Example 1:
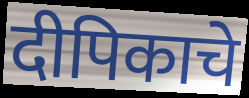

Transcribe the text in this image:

दीपिकाचे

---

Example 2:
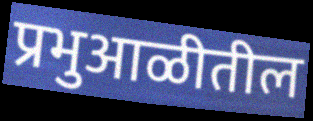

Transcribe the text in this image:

प्रभुआळीतील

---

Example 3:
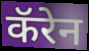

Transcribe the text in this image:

कॅरेन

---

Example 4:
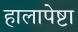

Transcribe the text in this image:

हालापेष्टा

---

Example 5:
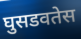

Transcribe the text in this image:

घुसडवतेस